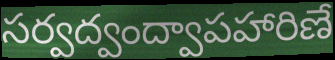
సర్వద్వంద్వాపహారిణే